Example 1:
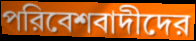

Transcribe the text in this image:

পরিবেশবাদীদের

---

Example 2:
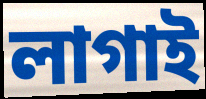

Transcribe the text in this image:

লাগাই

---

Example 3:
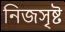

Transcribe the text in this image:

নিজসৃষ্ট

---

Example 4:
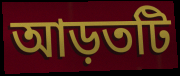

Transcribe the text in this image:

আড়তটি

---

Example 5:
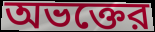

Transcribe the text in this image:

অভক্তের